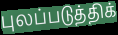
புலப்படுத்திக்